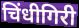
चिंधीगिरी